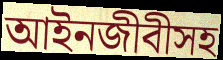
আইনজীবীসহ